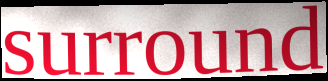
surround